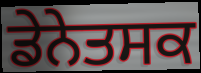
ਡੇਨੇਤਸਕ